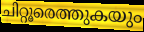
ചിറ്റൂരെത്തുകയും